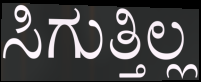
ಸಿಗುತ್ತಿಲ್ಲ